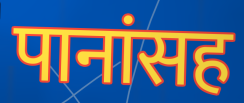
पानांसह